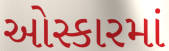
ઓસ્કારમાં